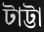
টাট্টা